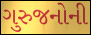
ગુરુજનોની